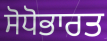
ਸੋਧੋਭਾਰਤ